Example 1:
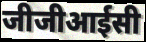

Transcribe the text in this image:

जीजीआईसी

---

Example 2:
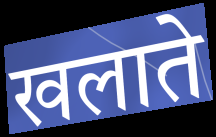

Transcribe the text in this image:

खलाते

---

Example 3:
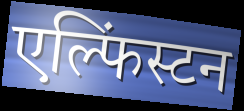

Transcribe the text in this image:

एल्फिंस्टन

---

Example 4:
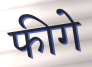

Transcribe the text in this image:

फीगे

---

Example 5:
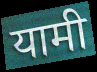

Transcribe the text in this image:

यामी